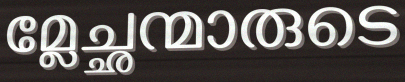
മ്ലേച്ഛന്മാരുടെ